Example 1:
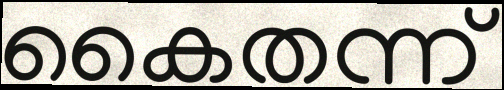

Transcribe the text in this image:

കൈതന്ന്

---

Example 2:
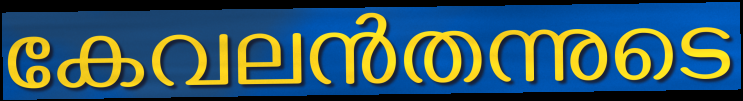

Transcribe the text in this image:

കേവലൻതന്നുടെ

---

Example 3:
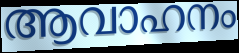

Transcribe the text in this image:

ആവാഹനം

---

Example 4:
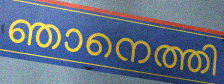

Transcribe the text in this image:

ഞാനെത്തി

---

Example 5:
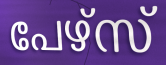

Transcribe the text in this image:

പേഴ്സ്